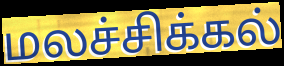
மலச்சிக்கல்